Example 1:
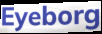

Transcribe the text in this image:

Eyeborg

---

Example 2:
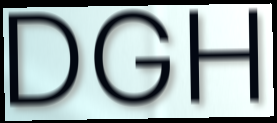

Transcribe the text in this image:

DGH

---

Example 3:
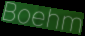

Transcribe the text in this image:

Boehm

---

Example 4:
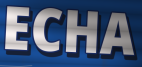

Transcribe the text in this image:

ECHA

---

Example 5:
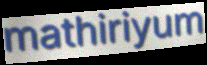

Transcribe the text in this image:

mathiriyum